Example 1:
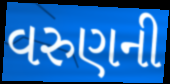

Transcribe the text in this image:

વરુણની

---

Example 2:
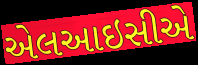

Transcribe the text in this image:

એલઆઇસીએ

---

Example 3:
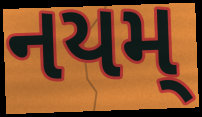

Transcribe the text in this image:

નયમ્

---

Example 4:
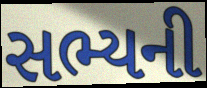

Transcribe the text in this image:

સભ્યની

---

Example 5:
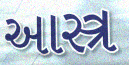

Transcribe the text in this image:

આસ્ત્ર